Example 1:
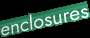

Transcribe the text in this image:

enclosures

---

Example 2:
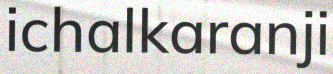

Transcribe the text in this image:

ichalkaranji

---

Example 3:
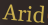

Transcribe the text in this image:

Arid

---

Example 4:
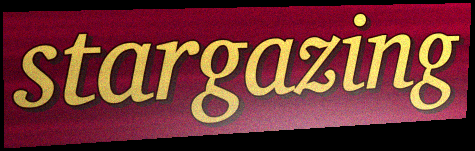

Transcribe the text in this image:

stargazing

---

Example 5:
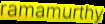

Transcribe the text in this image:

ramamurthy